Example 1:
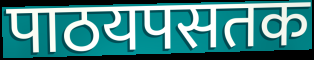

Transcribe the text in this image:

पाठयपसतक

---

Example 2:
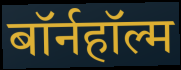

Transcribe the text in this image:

बॉर्नहॉल्म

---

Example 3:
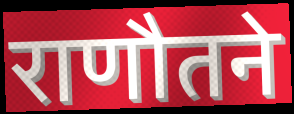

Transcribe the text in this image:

राणौतने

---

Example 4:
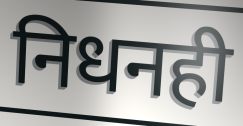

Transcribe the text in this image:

निधनही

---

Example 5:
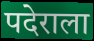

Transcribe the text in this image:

पदेराला